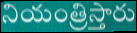
నియంత్రిస్తారు